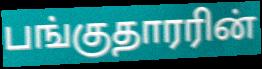
பங்குதாரரின்